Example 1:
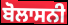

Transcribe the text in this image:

ਬੋਲਾਸਨੀ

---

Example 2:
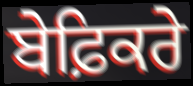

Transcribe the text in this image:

ਬੇਫ਼ਿਕਰੇ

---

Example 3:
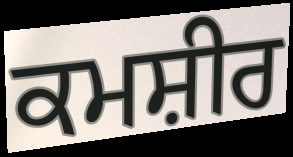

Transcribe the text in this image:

ਕਮਸ਼ੀਰ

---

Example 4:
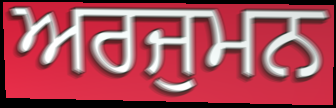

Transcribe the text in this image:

ਅਰਜੁਮਨ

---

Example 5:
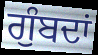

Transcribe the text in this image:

ਗੁੰਬਦਾਂ